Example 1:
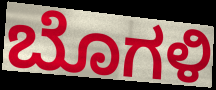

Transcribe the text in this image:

ಬೊಗಳಿ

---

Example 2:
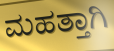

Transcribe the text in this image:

ಮಹತ್ತಾಗಿ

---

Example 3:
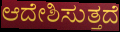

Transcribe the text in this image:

ಆದೇಶಿಸುತ್ತದೆ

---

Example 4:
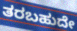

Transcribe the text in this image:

ತರಬಹುದೇ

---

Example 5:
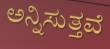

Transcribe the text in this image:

ಅನ್ನಿಸುತ್ತವೆ